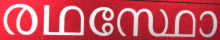
രഥസ്ഥോ